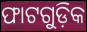
ଫାଟଗୁଡ଼ିକ